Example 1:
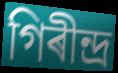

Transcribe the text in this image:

গিৰীন্দ্ৰ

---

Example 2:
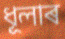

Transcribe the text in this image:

ধূলাৰ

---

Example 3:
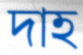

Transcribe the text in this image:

দাহ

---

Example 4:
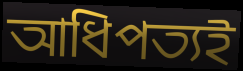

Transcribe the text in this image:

আধিপত্যই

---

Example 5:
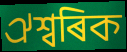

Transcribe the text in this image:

ঐশ্বৰিক